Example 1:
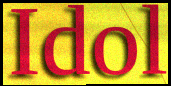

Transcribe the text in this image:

Idol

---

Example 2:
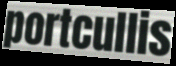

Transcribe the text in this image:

portcullis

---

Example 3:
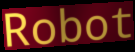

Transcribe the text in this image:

Robot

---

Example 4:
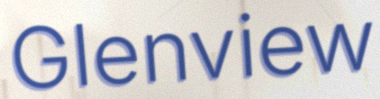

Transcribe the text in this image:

Glenview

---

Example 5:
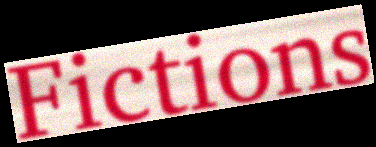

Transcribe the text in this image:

Fictions